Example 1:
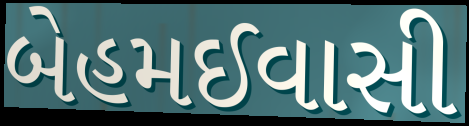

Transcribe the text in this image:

બેહમઈવાસી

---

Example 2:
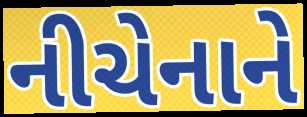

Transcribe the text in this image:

નીચેનાને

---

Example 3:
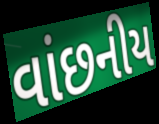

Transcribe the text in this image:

વાંછનીય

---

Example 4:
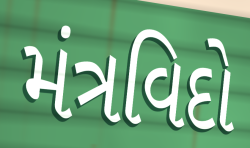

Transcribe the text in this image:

મંત્રવિદો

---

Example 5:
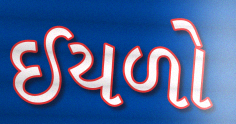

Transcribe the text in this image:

ઈયળો